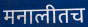
मनालीतच